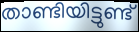
താണ്ടിയിട്ടുണ്ട്